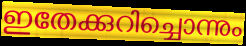
ഇതേക്കുറിച്ചൊന്നും